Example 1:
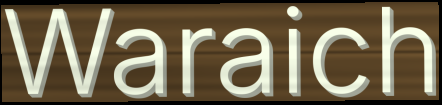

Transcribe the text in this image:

Waraich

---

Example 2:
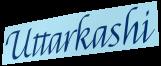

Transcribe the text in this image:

Uttarkashi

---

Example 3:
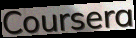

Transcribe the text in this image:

Coursera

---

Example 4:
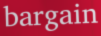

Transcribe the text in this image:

bargain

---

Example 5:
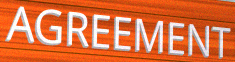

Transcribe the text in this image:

AGREEMENT